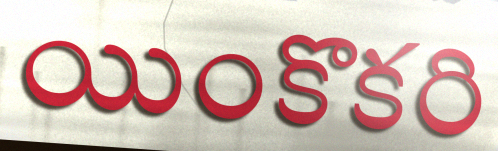
యింకొకరి